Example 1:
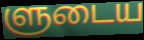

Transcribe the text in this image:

ளுடைய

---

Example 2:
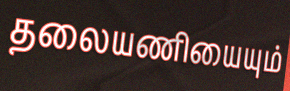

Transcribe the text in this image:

தலையணியையும்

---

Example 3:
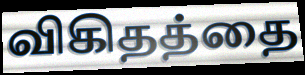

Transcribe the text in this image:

விகிதத்தை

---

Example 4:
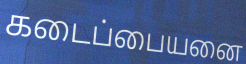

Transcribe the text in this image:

கடைப்பையனை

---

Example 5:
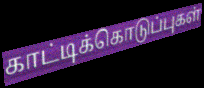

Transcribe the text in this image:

காட்டிக்கொடுப்புகள்